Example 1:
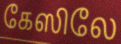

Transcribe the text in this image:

கேஸிலே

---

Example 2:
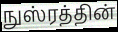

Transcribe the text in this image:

நுஸ்ரத்தின்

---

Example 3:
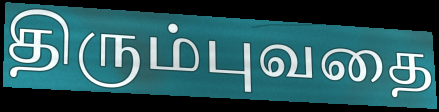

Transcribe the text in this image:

திரும்புவதை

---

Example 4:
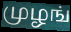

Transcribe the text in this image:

முழங்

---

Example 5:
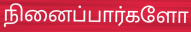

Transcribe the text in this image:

நினைப்பார்களோ